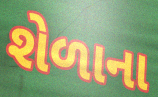
શેળાના